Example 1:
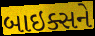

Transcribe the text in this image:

બાઇક્સને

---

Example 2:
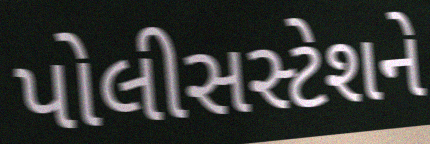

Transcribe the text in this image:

પોલીસસ્ટેશને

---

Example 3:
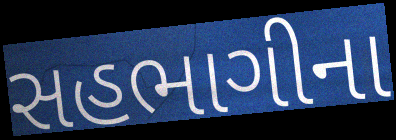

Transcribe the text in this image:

સહભાગીના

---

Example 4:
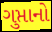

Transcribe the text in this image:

ગુપ્તાનો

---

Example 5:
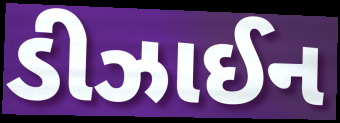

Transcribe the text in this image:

ડીઝાઈન